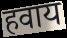
हवाय